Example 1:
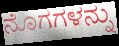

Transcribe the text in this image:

ನೊಗಗಳನ್ನು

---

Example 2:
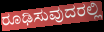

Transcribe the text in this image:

ರೂಢಿಸುವುದರಲ್ಲಿ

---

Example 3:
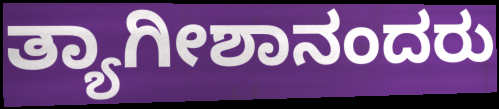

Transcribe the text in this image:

ತ್ಯಾಗೀಶಾನಂದರು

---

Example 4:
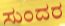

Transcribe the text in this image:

ಸುಂದರ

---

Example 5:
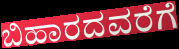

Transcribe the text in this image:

ಬಿಹಾರದವರೆಗೆ